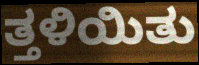
ತ್ತಳಿಯಿತು